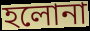
হলোনা